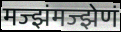
मज्झंमज्झेणं